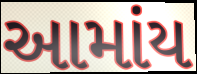
આમાંય